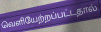
வெளியேற்றப்பட்டதால்